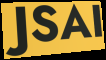
JSAI